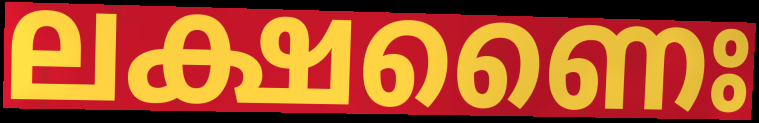
ലക്ഷണൈഃ